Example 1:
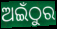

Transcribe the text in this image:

ଅଇଁଠୁର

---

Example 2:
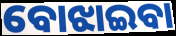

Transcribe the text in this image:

ବୋଝାଇବା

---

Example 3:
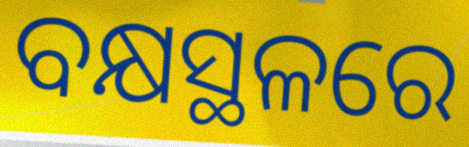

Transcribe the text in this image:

ବକ୍ଷସ୍ଥଳରେ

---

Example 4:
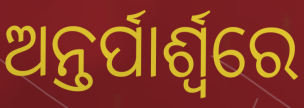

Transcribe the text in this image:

ଅନ୍ତର୍ପାର୍ଶ୍ୱରେ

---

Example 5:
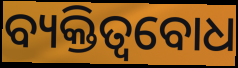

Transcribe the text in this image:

ବ୍ୟକ୍ତିତ୍ୱବୋଧ